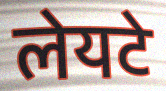
लेयटे